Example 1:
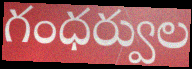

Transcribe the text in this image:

గంధర్వుల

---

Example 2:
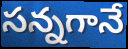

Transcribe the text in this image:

సన్నగానే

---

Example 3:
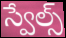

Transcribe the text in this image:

స్వేల్స్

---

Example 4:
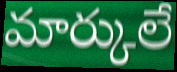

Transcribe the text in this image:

మార్కులే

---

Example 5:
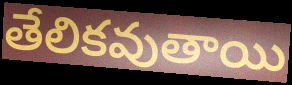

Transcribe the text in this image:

తేలికవుతాయి